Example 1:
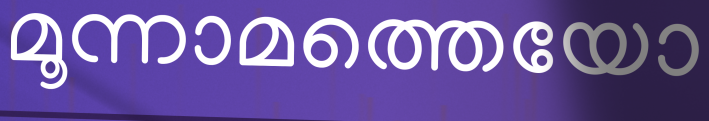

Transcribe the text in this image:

മൂന്നാമത്തെയോ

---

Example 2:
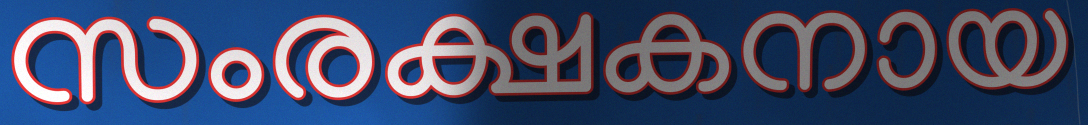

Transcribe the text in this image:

സംരക്ഷകനായ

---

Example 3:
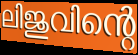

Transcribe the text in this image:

ലിജുവിന്റെ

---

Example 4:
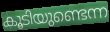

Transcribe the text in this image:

കൂടിയുണ്ടെന്ന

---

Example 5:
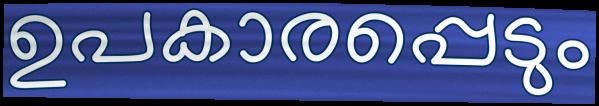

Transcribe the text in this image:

ഉപകാരപ്പെടും